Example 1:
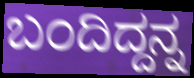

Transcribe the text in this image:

ಬಂದಿದ್ದನ್ನ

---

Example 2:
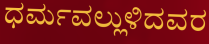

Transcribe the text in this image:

ಧರ್ಮವಲ್ಲುಳಿದವರ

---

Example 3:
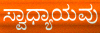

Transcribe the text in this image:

ಸ್ವಾಧ್ಯಾಯವು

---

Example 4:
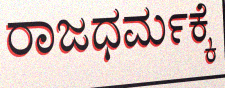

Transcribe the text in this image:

ರಾಜಧರ್ಮಕ್ಕೆ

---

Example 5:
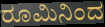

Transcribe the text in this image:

ರೂಮಿನಿಂದ